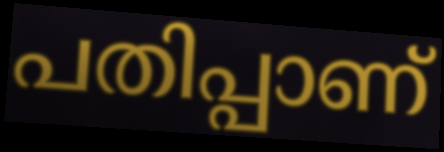
പതിപ്പാണ്